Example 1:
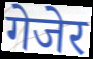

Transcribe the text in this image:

गेजेर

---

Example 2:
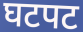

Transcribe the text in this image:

घटपट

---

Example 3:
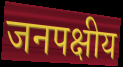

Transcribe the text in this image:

जनपक्षीय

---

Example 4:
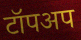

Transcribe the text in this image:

टॉपअप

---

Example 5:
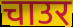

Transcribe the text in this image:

चाउर